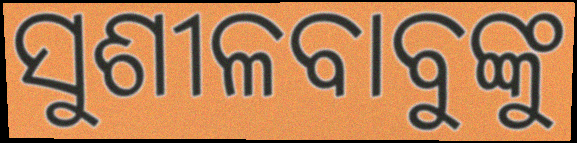
ସୁଶୀଳବାବୁଙ୍କୁ